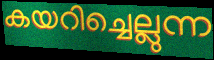
കയറിച്ചെല്ലുന്ന